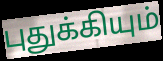
புதுக்கியும்